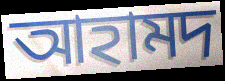
আহামদ